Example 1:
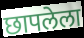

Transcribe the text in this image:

छापलेला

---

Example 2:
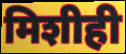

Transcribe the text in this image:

मिशीही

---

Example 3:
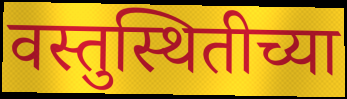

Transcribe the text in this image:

वस्तुस्थितीच्या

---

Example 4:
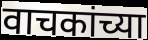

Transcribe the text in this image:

वाचकांच्या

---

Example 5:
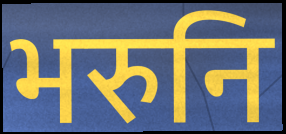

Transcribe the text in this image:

भरुनि